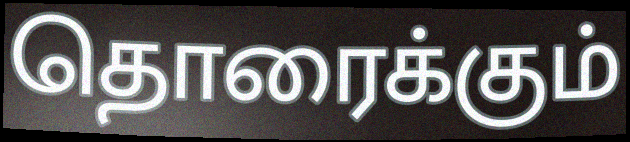
தொரைக்கும்